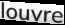
louvre